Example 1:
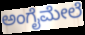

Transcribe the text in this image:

ಅಂಗೈಮೇಲೆ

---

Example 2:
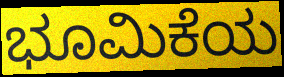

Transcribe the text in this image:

ಭೂಮಿಕೆಯ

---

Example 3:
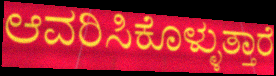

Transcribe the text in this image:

ಆವರಿಸಿಕೊಳ್ಳುತ್ತಾರೆ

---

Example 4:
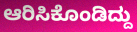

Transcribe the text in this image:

ಆರಿಸಿಕೊಂಡಿದ್ದು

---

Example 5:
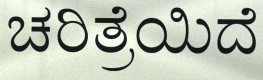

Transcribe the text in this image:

ಚರಿತ್ರೆಯಿದೆ